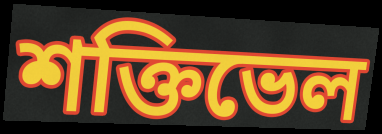
শক্তিভেল